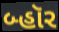
બ્હૉર